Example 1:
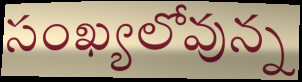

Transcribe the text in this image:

సంఖ్యలోవున్న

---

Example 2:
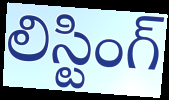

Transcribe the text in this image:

లిస్టింగ్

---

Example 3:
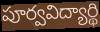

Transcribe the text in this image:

పూర్వవిద్యార్థి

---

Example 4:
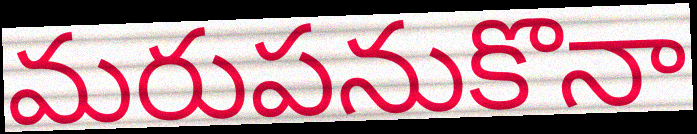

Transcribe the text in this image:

మరుపనుకొనా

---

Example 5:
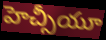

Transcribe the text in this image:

హెచ్సీయూ